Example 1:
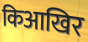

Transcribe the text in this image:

किआखिर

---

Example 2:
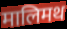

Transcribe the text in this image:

मालिमथ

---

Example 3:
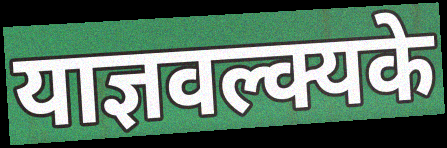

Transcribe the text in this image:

याज्ञवल्क्यके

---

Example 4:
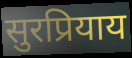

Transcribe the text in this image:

सुरप्रियाय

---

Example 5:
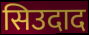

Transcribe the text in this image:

सिउदाद